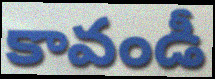
కావండీ